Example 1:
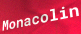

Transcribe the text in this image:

Monacolin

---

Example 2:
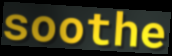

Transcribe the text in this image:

soothe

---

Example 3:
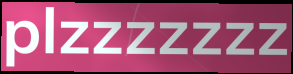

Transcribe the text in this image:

plzzzzzzz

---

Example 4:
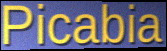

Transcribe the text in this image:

Picabia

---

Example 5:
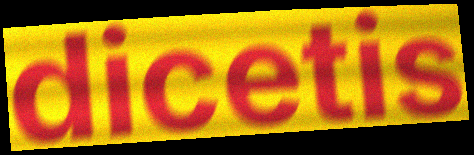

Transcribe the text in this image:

dicetis